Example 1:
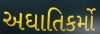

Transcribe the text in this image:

અઘાતિકર્મો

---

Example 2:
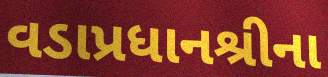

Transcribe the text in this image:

વડાપ્રધાનશ્રીના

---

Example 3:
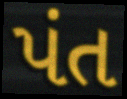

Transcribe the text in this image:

પંત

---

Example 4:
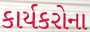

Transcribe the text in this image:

કાર્યકરોના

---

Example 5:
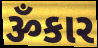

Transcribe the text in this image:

ૐકાર